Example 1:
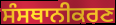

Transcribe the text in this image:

ਸੰਸਥਾਨੀਕਰਣ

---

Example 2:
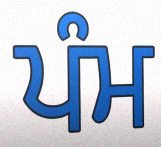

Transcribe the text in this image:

ਪੰਮ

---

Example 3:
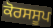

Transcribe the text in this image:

ਕੋਰਸਸੂਪ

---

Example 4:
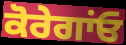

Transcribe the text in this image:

ਕੋਰੇਗਾਂਓ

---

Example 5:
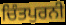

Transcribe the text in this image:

ਚਿੰਤਪੁਰਨੀ